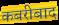
कबरीबाद